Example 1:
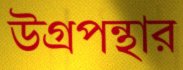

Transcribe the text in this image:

উগ্রপন্থার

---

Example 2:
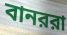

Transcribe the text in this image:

বানররা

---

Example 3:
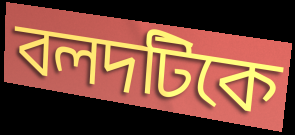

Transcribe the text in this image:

বলদটিকে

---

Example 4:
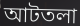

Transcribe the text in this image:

আটতলা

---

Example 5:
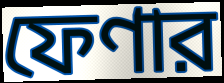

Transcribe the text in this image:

ফেণার